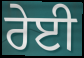
ਰੇਈ